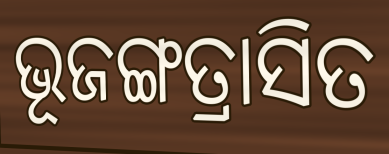
ଭୂଜଙ୍ଗତ୍ରାସିତ